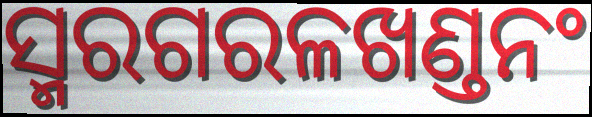
ସ୍ମରଗରଳଖଣ୍ଡନଂ